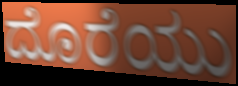
ದೊರೆಯು